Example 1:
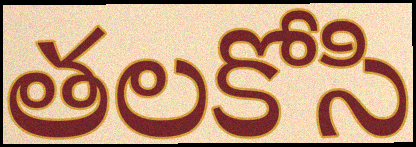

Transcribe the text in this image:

తలకోసి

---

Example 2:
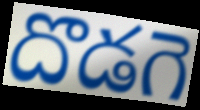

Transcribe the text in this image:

దొడగె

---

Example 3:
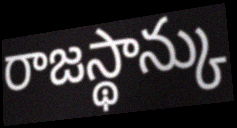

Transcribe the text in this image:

రాజస్థాన్కు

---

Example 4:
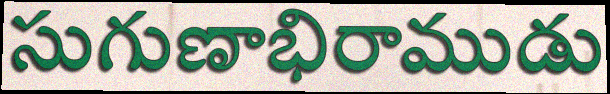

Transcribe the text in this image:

సుగుణాభిరాముడు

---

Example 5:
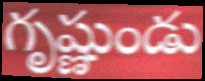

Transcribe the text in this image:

గృష్ణుండు